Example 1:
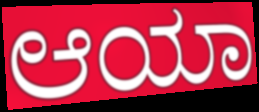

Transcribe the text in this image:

ಆಯಾ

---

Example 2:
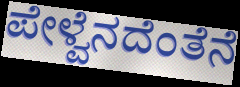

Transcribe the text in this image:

ಪೇಳ್ವೆನದೆಂತೆನೆ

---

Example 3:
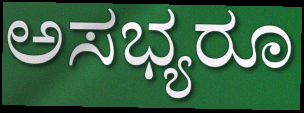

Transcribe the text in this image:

ಅಸಭ್ಯರೂ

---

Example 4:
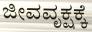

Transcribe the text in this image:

ಜೀವವೃಕ್ಷಕ್ಕೆ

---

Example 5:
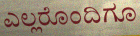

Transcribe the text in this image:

ಎಲ್ಲರೊಂದಿಗೂ